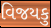
વિજયકુ